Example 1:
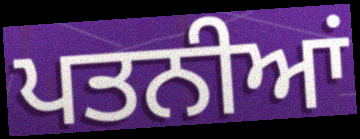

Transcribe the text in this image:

ਪਤਨੀਆਂ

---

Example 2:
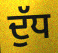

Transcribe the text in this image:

ਦੁੱਧ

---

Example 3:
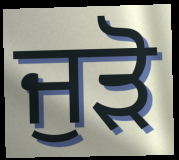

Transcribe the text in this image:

ਜੁੜੋ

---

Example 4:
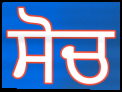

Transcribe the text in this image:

ਸੋਚ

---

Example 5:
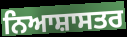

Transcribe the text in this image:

ਨਿਆਸ਼ਾਸਤਰ